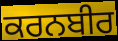
ਕਰਨਬੀਰ